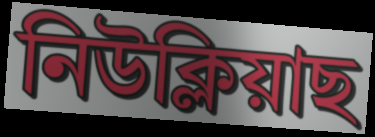
নিউক্লিয়াছ